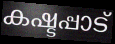
കഷ്ടപ്പാട്